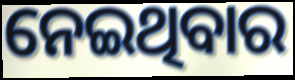
ନେଇଥିବାର